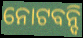
ନୋଟବନ୍ଦି